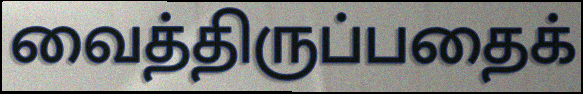
வைத்திருப்பதைக்